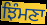
ਝਿੰਮਣਾ